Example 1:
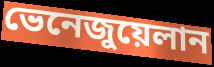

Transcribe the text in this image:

ভেনেজুয়েলান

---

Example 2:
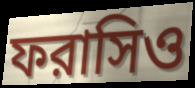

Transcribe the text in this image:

ফরাসিও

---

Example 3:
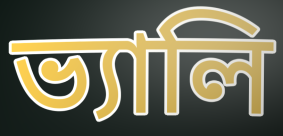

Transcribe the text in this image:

ভ্যালি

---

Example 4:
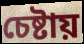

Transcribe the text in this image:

চেষ্টায়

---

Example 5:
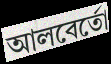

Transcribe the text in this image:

আলবের্তো